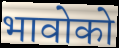
भावोको